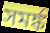
সমর্ঙ্ক